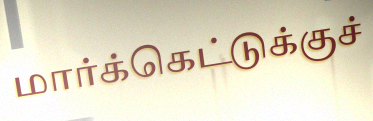
மார்க்கெட்டுக்குச்